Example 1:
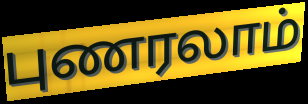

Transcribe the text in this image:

புணரலாம்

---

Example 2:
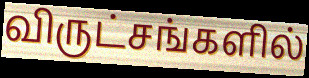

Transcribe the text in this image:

விருட்சங்களில்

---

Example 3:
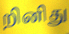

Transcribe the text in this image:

றினிது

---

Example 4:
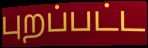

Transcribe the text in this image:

புறப்பட்ட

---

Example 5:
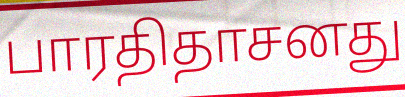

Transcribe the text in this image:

பாரதிதாசனது